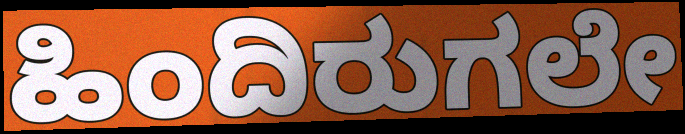
ಹಿಂದಿರುಗಲೇ